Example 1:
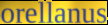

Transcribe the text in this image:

orellanus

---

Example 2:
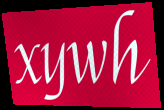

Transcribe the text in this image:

xywh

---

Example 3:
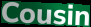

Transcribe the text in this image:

Cousin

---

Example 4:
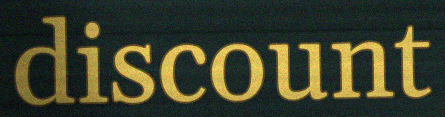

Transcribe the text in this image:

discount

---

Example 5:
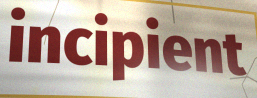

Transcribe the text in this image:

incipient